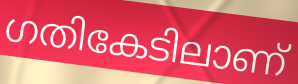
ഗതികേടിലാണ്